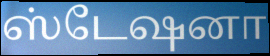
ஸ்டேஷனா